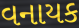
વનાયક